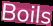
Boils